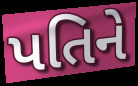
પતિને